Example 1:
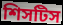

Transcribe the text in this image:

শিসটিস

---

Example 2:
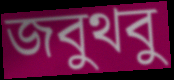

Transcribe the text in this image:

জবুথবু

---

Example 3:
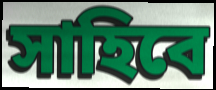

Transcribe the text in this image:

সাহিবে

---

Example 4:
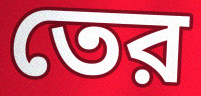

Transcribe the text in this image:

তের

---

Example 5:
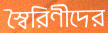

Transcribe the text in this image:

স্বৈরিণীদের